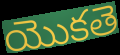
యొకతె